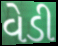
વેડી